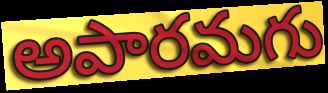
అపారమగు